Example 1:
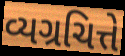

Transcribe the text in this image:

વ્યગ્રચિત્તે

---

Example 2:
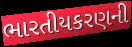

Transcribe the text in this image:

ભારતીયકરણની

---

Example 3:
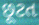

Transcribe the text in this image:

છૂટત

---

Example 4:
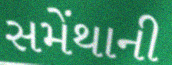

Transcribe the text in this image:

સમેંથાની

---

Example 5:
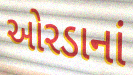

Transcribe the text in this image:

ઓરડાનાં